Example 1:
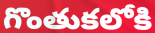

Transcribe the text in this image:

గొంతుకలోకి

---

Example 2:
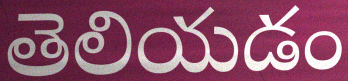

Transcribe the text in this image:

తెలియడం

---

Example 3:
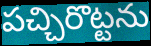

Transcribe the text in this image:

పచ్చిరొట్టను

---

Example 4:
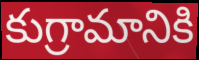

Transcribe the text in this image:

కుగ్రామానికి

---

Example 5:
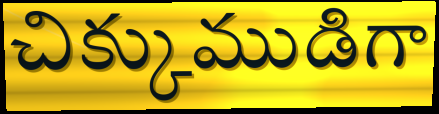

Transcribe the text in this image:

చిక్కుముడిగా